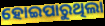
ହୋଇପାରୁଥିଲା